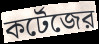
কর্টেজের